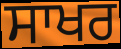
ਸਾਖਰ